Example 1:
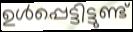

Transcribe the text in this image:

ഉൾപ്പെട്ടിട്ടുണ്ട്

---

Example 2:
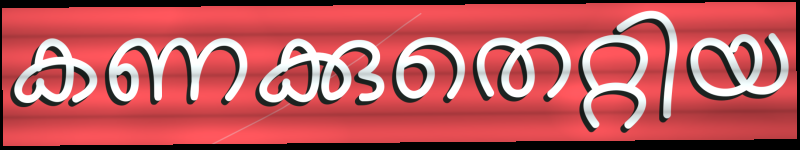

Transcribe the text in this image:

കണക്കുതെറ്റിയ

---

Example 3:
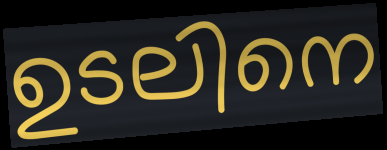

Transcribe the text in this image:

ഉടലിനെ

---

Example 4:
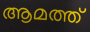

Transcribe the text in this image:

ആമത്ത്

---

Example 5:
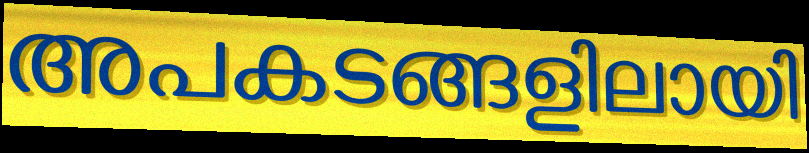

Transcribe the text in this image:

അപകടങ്ങളിലായി